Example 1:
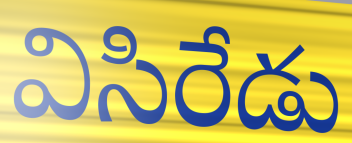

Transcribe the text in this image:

విసిరేడు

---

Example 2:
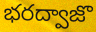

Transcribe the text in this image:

భరద్వాజొ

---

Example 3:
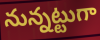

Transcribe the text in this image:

నున్నట్టుగా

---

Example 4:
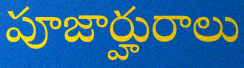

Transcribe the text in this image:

పూజార్హురాలు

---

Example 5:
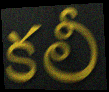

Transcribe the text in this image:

కలీ